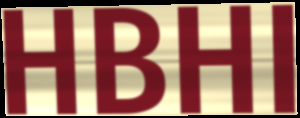
HBHI